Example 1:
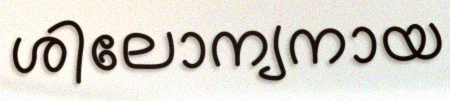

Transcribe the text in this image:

ശിലോന്യനായ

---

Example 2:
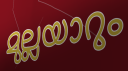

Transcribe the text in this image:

മുല്ലയാറും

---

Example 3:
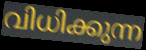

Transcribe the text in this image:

വിധിക്കുന്ന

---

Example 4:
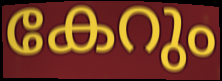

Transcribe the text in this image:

കേറും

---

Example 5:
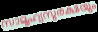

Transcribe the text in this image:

സാമൂഹ്യസുരക്ഷയും